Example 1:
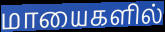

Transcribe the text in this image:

மாயைகளில்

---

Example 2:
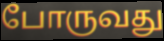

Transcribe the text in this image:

போருவது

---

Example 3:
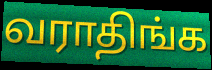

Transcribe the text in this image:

வராதிங்க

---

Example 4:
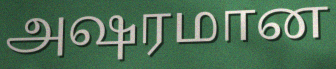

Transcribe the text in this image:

அஷரமான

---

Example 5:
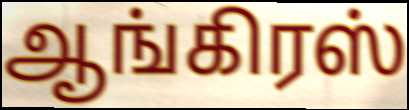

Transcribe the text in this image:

ஆங்கிரஸ்